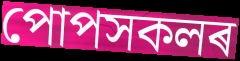
পোপসকলৰ